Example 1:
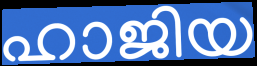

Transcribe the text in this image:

ഹാജിയ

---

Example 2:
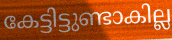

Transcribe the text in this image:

കേട്ടിട്ടുണ്ടാകില്ല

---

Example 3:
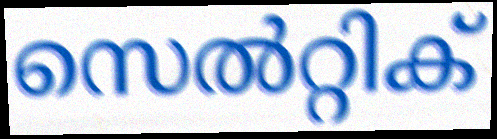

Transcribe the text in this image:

സെൽറ്റിക്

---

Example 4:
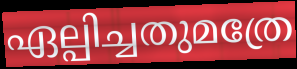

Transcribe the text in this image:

ഏല്പിച്ചതുമത്രേ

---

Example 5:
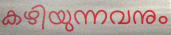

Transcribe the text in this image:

കഴിയുന്നവനും